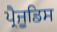
ਪ੍ਰੈਜੂਡਿਸ